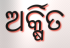
ଅର୍କ୍ଷିତ